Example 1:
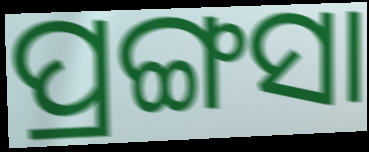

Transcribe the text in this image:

ପ୍ରଙ୍ଗସା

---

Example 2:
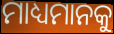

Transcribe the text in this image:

ମାଧ୍ୟମାନକୁ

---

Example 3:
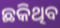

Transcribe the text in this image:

ଛକିଥିବ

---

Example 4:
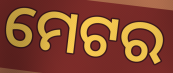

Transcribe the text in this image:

ମେଟର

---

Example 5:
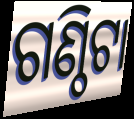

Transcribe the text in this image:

ଗଣ୍ଠିଟା